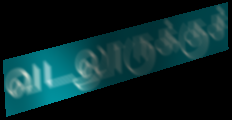
வடலூருக்குச்